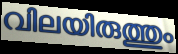
വിലയിരുത്തും